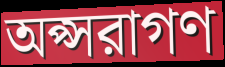
অপ্সরাগণ